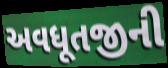
અવધૂતજીની